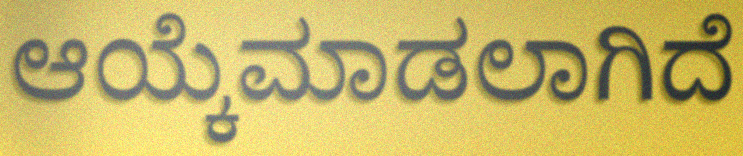
ಆಯ್ಕೆಮಾಡಲಾಗಿದೆ